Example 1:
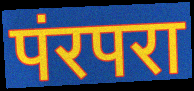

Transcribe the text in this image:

पंरपरा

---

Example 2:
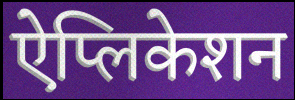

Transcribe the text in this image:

ऐप्लिकेशन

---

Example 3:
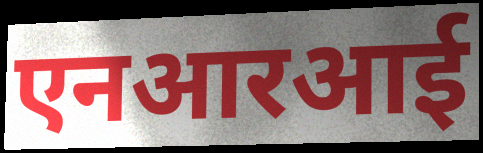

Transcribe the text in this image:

एनआरआई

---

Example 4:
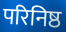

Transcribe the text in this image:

परिनिष्ठ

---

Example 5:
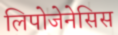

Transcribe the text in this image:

लिपोजेनेसिस